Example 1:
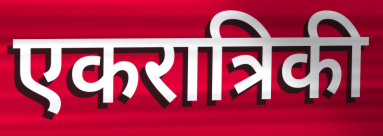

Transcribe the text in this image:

एकरात्रिकी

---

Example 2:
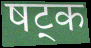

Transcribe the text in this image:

षट्क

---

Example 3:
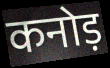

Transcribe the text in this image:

कनोड़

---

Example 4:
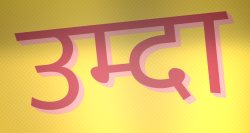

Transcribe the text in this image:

उम्दा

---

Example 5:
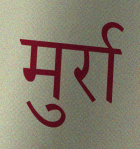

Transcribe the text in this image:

मुर्रा